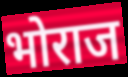
भोराज